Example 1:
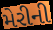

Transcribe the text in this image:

મેરીની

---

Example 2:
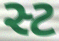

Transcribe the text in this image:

સ્ટ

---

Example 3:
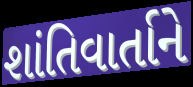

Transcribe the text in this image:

શાંતિવાર્તાને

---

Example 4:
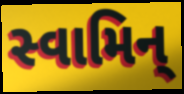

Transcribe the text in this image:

સ્વામિન્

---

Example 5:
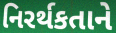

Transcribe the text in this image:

નિરર્થકતાને